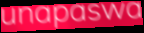
unapaswa